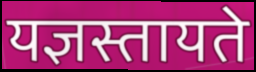
यज्ञस्तायते